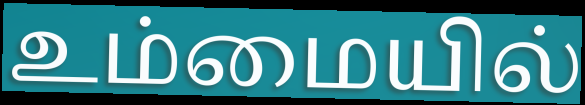
உம்மையில்